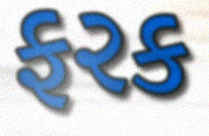
ફરક